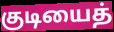
குடியைத்